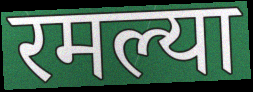
रमल्या